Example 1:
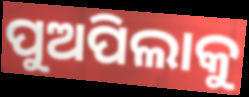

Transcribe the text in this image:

ପୁଅପିଲାକୁ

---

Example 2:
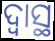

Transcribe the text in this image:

ଦ୍ୱାସ୍ଥ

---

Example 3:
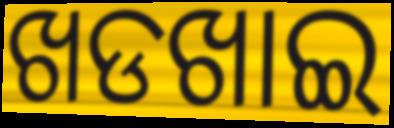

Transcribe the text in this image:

ଖଡଖାଇ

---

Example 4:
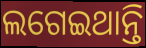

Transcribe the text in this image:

ଲଗେଇଥାନ୍ତି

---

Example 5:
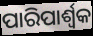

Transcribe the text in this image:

ପାରିପାର୍ଶ୍ଵକ